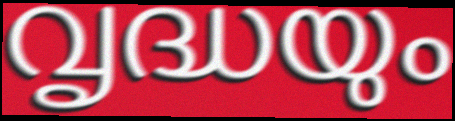
വൃദ്ധയും